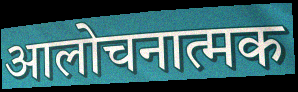
आलोचनात्मक